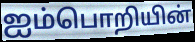
ஐம்பொறியின்